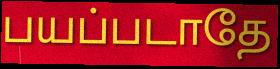
பயப்படாதே